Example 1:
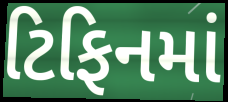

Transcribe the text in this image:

ટિફિનમાં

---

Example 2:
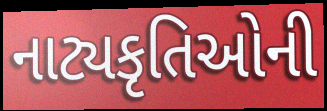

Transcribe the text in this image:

નાટ્યકૃતિઓની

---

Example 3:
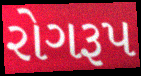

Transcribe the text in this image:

રોગરૂપ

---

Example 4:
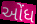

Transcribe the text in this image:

ઓંધ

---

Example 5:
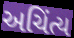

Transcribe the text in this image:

અચિંત્ય